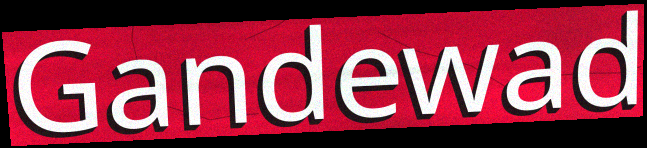
Gandewad